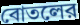
বোতলের